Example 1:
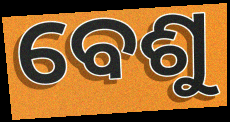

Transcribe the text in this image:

ବେଶୁ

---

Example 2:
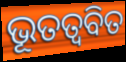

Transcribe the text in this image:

ଭୂତତ୍ଵବିତ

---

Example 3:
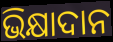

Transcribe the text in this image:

ଭିକ୍ଷାଦାନ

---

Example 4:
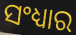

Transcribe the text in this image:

ସଂଧ୍ୟାର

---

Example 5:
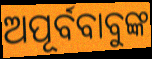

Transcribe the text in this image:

ଅପୂର୍ବବାବୁଙ୍କ